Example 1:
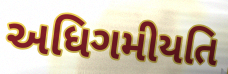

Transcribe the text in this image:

અધિગમીયતિ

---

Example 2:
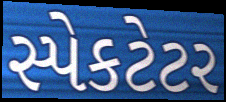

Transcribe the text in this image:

સ્પેકટેટર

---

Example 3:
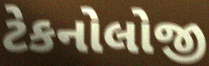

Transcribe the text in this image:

ટેકનોલોજી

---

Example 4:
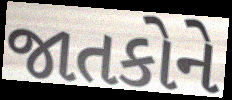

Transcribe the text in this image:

જાતકોને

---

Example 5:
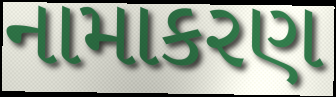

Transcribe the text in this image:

નામાકરણ